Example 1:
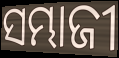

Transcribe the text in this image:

ସମ୍ଭାଜୀ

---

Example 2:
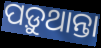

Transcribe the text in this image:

ପଡ଼ୁଥାନ୍ତା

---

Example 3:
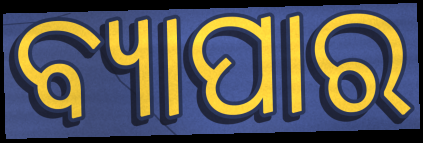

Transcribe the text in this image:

ବ୍ଯାପାର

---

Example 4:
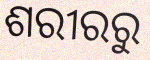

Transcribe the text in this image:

ଶରୀରରୁ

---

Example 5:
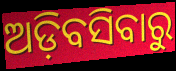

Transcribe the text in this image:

ଅଡ଼ିବସିବାରୁ